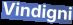
Vindigni